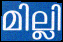
മില്ലി